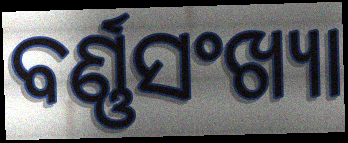
ବର୍ଣ୍ଣସଂଖ୍ୟା